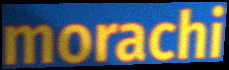
morachi